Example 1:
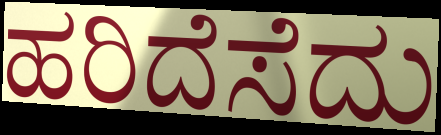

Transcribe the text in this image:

ಹರಿದೆಸೆದು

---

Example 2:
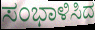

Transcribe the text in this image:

ಸಂಭಾಳಿಸಿದ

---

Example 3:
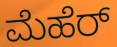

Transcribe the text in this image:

ಮೆಹೆರ್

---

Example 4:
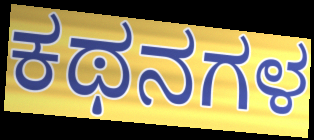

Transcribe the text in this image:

ಕಥನಗಳ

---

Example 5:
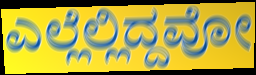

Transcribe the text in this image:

ಎಲ್ಲೆಲ್ಲಿದ್ದವೋ